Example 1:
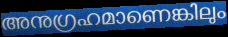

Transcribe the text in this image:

അനുഗ്രഹമാണെങ്കിലും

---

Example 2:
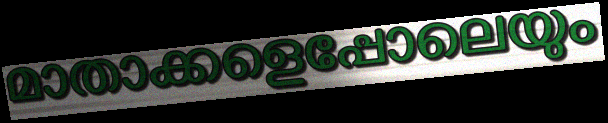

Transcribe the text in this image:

മാതാക്കളെപ്പോലെയും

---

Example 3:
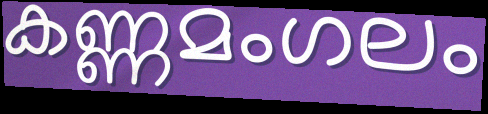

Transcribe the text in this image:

കണ്ണമംഗലം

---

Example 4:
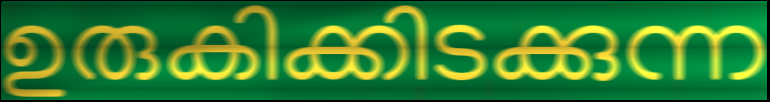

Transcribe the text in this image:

ഉരുകിക്കിടക്കുന്ന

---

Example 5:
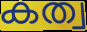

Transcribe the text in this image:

കത്വ